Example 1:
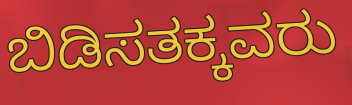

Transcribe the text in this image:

ಬಿಡಿಸತಕ್ಕವರು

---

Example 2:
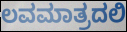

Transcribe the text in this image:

ಲವಮಾತ್ರದಲಿ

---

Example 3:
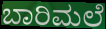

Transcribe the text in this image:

ಬಾರಿಮಲೆ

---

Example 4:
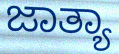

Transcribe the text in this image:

ಜಾತ್ಯಾ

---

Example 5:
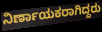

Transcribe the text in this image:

ನಿರ್ಣಾಯಕರಾಗಿದ್ದರು